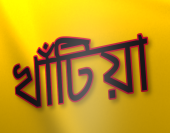
খাঁটিয়া